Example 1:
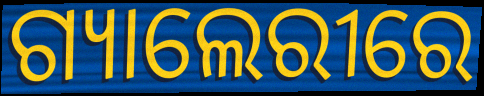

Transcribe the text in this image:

ଗ୍ୟାଲେରୀରେ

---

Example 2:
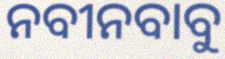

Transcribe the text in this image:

ନବୀନବାବୁ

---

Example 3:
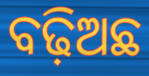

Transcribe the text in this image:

ବଢ଼ିଅଛ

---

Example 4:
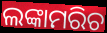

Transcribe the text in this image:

ଲଙ୍କାମରିଚ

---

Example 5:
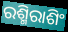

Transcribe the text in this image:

ରଶ୍ମିରାଶିଂ